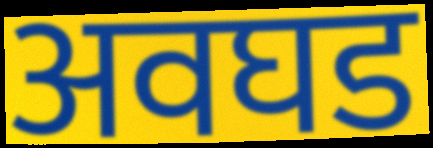
अवघड